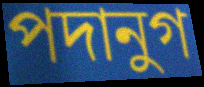
পদানুগ